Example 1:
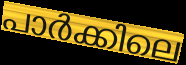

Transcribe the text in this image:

പാർക്കിലെ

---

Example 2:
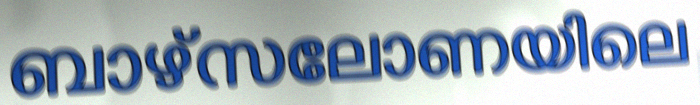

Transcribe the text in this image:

ബാഴ്സലോണയിലെ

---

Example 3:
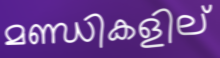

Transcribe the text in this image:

മണ്ഡികളില്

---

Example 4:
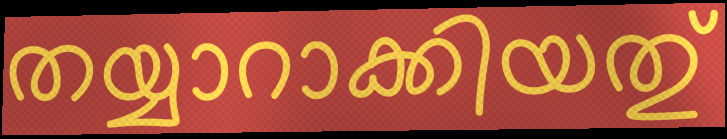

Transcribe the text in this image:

തയ്യാറാക്കിയതു്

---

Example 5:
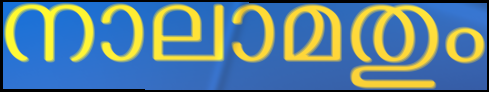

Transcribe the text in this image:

നാലാമതും